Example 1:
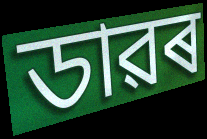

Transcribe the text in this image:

ডাৱৰ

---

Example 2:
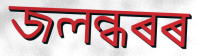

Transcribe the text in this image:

জলন্ধৰৰ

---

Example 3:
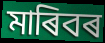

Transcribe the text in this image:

মাৰিবৰ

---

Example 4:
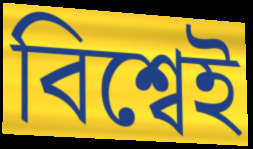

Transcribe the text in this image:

বিশ্বেই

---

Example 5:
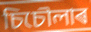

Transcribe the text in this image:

চিচৌলাৰ